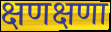
क्षणक्षणा